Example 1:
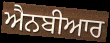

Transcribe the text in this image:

ਐਨਬੀਆਰ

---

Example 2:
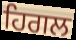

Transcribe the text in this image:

ਹਿਗਲ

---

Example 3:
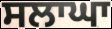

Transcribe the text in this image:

ਸਲਾਘਾ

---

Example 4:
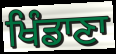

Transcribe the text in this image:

ਖਿੰਡਾਣਾ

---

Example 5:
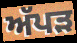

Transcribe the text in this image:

ਅੱਪੜ